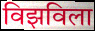
विझविला